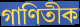
গাণিতীক